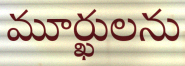
మూర్ఖులను